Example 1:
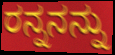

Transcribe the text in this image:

ರನ್ನನನ್ನು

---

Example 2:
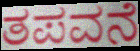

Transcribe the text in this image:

ತಪವನೆ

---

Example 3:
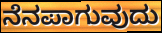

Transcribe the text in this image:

ನೆನಪಾಗುವುದು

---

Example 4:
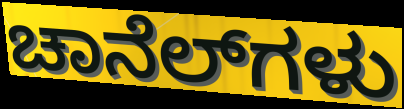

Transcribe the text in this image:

ಚಾನೆಲ್‌ಗಳು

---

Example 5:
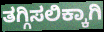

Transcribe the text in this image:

ತಗ್ಗಿಸಲಿಕ್ಕಾಗಿ